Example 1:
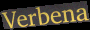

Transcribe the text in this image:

Verbena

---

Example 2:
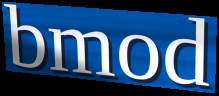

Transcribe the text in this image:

bmod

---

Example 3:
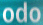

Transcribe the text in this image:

odo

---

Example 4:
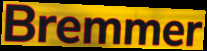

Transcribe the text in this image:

Bremmer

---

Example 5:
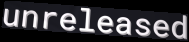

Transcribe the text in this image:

unreleased